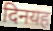
दिनयह